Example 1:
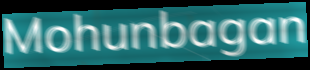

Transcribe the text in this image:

Mohunbagan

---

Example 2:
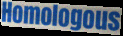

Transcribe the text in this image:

Homologous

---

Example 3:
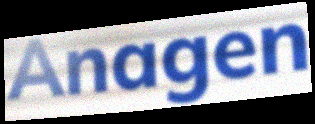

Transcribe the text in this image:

Anagen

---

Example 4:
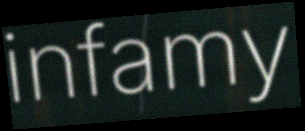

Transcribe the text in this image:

infamy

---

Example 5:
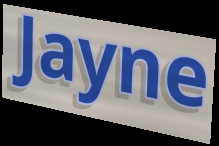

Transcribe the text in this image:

Jayne